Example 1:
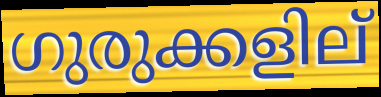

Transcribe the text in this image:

ഗുരുക്കളില്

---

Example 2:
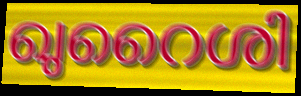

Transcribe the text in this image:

ഖുറൈശി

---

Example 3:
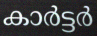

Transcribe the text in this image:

കാർട്ടർ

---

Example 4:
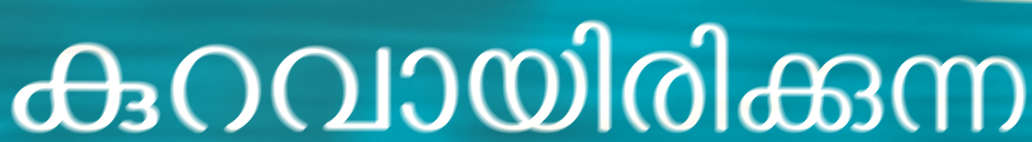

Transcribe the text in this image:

കുറവായിരിക്കുന്ന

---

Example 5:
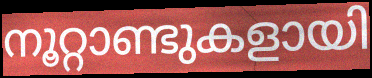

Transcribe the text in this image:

നൂറ്റാണ്ടുകളായി